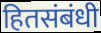
हितसंबंधी